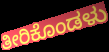
ತೀರಿಕೊಂಡಳು